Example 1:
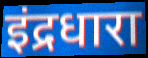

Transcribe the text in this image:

इंद्रधारा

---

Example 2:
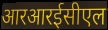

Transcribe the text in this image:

आरआरईसीएल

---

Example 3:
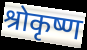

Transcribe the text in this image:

श्रोकृष्ण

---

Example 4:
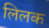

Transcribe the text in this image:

लिलक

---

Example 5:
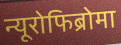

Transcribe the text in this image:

न्यूरोफिब्रोमा